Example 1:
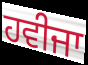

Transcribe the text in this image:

ਹਵੀਜਾ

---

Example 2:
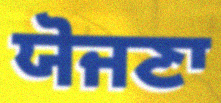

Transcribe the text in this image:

ਯੋਜਣਾ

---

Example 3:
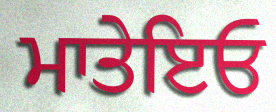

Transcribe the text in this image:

ਮਾਤੇਇਓ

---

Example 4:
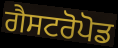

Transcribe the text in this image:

ਗੈਸਟਰੋਪੋਡ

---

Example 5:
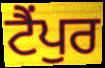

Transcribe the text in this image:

ਟੈਂਪੁਰ